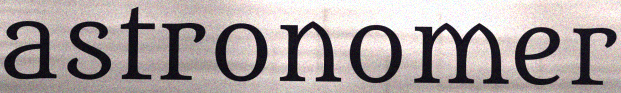
astronomer